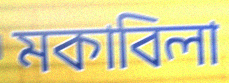
মকাবিলা